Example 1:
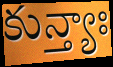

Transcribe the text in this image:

కున్త్యాః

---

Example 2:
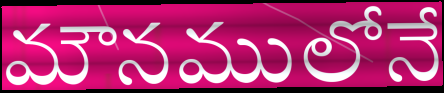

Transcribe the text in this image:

మౌనములోనే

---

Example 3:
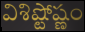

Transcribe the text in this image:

విశిష్టోష్ణం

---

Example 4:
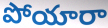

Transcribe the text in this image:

పోయారా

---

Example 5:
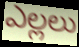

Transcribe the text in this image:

ఎల్లలు